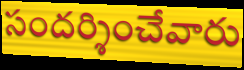
సందర్శించేవారు